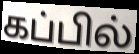
கப்பில்